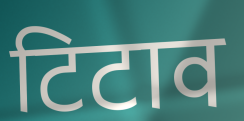
टिटाव